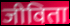
जीविता